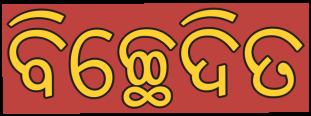
ବିଚ୍ଛେଦିତ